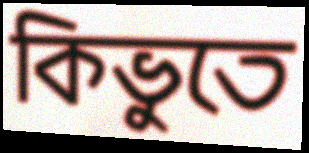
কিভুতে